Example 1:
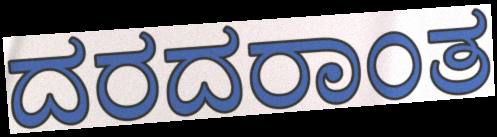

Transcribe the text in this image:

ದರದರಾಂತ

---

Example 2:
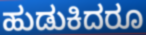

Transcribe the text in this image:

ಹುಡುಕಿದರೂ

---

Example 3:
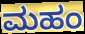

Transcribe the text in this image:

ಮಹಂ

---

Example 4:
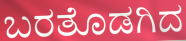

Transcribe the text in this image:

ಬರತೊಡಗಿದ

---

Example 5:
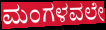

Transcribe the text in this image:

ಮಂಗಳವಲೇ